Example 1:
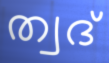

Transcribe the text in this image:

ത്വദ്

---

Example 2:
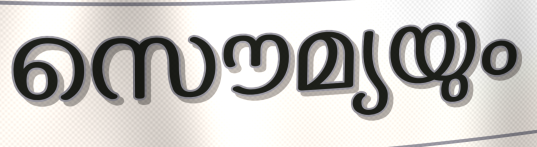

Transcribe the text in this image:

സൌമ്യയും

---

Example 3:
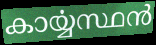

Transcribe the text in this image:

കാൎയ്യസ്ഥൻ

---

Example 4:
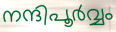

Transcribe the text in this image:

നന്ദിപൂർവ്വം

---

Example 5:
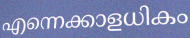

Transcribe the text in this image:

എന്നെക്കാളധികം